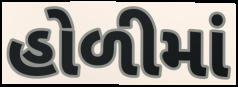
હોળીમાં